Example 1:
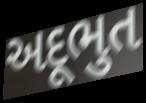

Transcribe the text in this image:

અદૂભુત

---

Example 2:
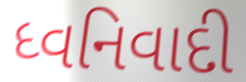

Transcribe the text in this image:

ધ્વનિવાદી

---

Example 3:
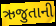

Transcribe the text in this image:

ઋજુતાની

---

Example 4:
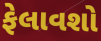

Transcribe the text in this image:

ફેલાવશો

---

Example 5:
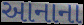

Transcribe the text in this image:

આનાના